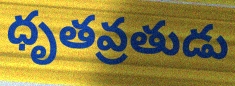
ధృతవ్రతుడు